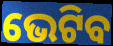
ଭେଟିବ